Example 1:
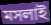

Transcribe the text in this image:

মসলাই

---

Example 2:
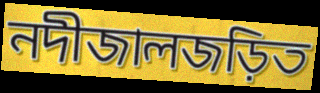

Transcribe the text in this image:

নদীজালজড়িত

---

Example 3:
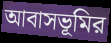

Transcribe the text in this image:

আবাসভূমির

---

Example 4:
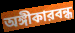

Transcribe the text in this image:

অঙ্গীকারবন্ধ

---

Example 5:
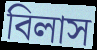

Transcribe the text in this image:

বিলাস